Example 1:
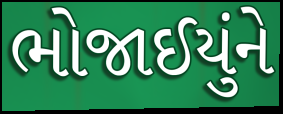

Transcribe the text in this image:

ભોજાઈયુંને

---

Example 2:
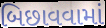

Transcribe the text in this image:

બિછાવવામાં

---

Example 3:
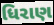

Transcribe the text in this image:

ધિરાણ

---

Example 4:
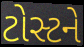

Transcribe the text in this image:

ટોસ્ટને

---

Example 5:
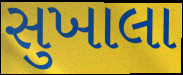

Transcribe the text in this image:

સુખાલા